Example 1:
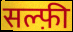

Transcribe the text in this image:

सल्फ़ी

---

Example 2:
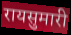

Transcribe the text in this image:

रायसुमारी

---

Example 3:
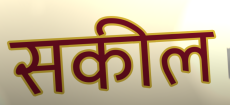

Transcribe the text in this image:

सकील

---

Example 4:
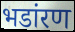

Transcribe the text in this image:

भडांरण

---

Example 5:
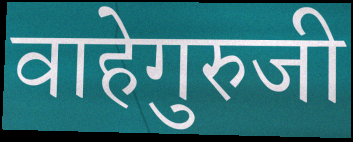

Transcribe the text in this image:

वाहेगुरुजी